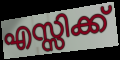
എസ്സിക്ക്